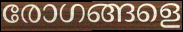
രോഗങ്ങളെ